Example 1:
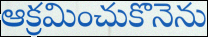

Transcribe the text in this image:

ఆక్రమించుకొనెను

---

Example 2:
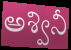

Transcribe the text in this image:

అశ్వినీ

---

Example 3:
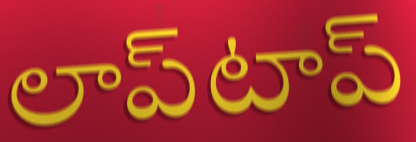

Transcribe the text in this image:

లాప్‌టాప్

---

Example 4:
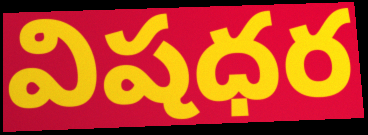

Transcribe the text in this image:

విషధర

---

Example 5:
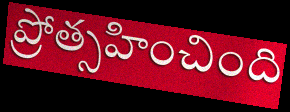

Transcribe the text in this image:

ప్రోత్సహించింది